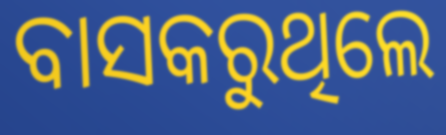
ବାସକରୁଥିଲେ